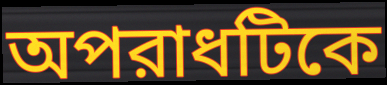
অপরাধটিকে